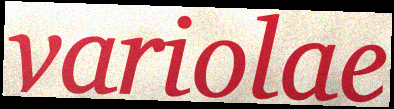
variolae